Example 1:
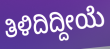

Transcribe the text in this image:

ತಿಳಿದಿದ್ದೀಯೆ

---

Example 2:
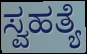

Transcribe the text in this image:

ಸ್ವಹತ್ಯೆ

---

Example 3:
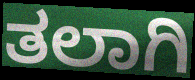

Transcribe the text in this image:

ತಲಾಗಿ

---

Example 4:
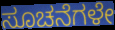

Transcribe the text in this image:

ಸೂಚನೆಗಳೇ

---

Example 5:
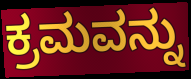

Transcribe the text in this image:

ಕ್ರಮವನ್ನು